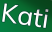
Kati